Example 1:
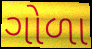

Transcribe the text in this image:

ગોળા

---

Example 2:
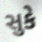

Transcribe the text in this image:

સુકે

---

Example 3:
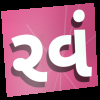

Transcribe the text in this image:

રવં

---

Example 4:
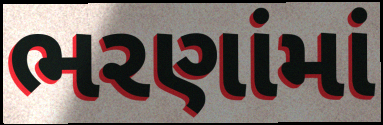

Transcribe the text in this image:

ભરણાંમાં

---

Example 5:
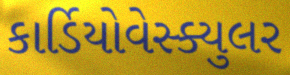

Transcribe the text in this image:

કાર્ડિયોવેસ્ક્યુલર